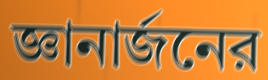
জ্ঞানার্জনের